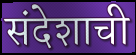
संदेशाची